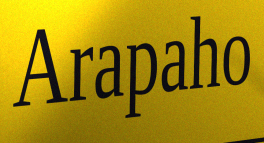
Arapaho